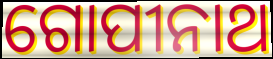
ଗୋପୀନାଥ